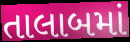
તાલાબમાં